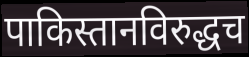
पाकिस्तानविरुद्धच